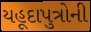
યહૂદાપુત્રોની